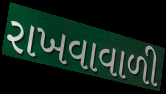
રાખવાવાળી